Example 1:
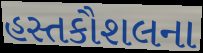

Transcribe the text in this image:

હસ્તકૌશલના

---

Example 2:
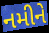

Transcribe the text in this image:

નમીને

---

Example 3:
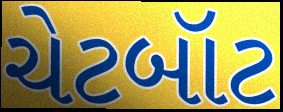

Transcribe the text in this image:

ચેટબૉટ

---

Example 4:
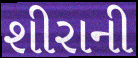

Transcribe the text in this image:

શીરાની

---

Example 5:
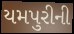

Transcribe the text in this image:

યમપુરીની